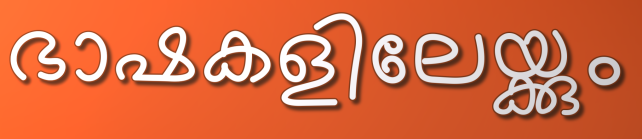
ഭാഷകളിലേയ്ക്കും